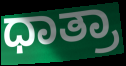
ಧಾತ್ರಾ